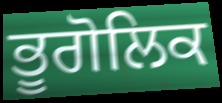
ਭੂਗੋਲਿਕ